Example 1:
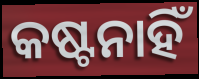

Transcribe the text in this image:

କଷ୍ଟନାହିଁ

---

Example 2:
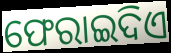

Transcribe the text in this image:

ଫେରାଇଦିଏ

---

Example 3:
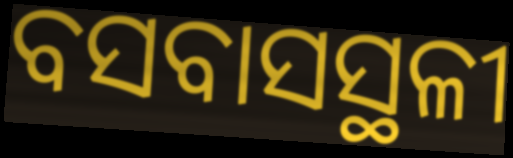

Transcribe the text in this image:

ବସବାସସ୍ଥଳୀ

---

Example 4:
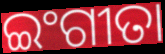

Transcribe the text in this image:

ଇଂଗୀତା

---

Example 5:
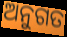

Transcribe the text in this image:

ଅନୁଗତ